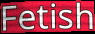
Fetish